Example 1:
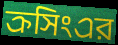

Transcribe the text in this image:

ক্রসিংএর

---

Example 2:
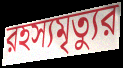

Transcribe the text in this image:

রহস্যমৃত্যুর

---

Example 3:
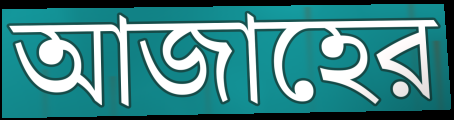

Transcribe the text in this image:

আজাহের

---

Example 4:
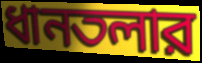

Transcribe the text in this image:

ধানতলার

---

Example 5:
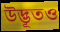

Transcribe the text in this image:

উদ্ভূতও